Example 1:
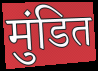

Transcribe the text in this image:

मुंडित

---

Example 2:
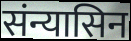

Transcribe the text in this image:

संन्यासिन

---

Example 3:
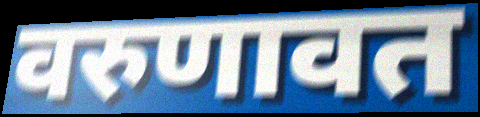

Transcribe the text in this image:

वरुणावत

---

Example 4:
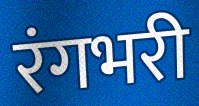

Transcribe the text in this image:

रंगभरी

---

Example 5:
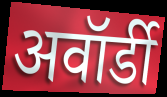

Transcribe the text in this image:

अवॉर्डी